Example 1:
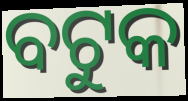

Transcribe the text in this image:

ବଟୁକ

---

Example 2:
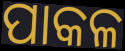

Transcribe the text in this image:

ପାକଳ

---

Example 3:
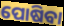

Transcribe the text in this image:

ପୋଷିବା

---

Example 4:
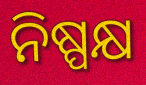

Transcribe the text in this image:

ନିଷ୍ପକ୍ଷ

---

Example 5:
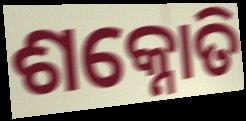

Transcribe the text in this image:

ଶକ୍ନୋତି